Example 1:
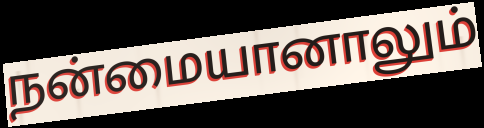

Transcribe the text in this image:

நன்மையானாலும்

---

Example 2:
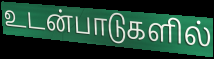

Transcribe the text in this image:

உடன்பாடுகளில்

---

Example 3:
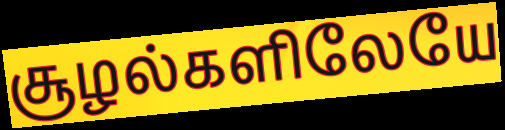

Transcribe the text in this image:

சூழல்களிலேயே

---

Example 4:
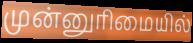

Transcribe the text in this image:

முன்னுரிமையில்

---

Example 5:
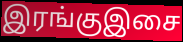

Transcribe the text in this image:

இரங்குஇசை